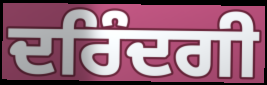
ਦਰਿੰਦਗੀ